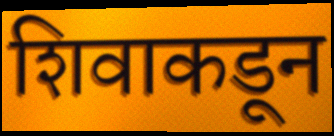
शिवाकडून